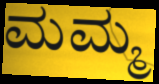
ಮಮ್ಮ